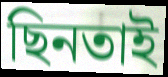
ছিনতাই